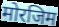
मोरजिम